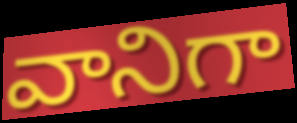
వానిగా